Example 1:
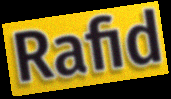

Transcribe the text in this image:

Rafid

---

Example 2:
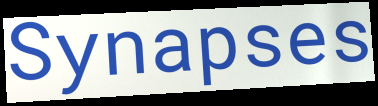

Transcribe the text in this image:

Synapses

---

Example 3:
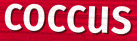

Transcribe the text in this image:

coccus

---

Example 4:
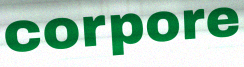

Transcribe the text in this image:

corpore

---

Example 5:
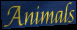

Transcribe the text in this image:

Animals